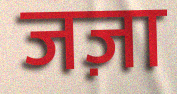
जज़ा